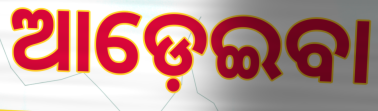
ଆଡ଼େଇବା